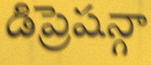
డిప్రెషన్గా